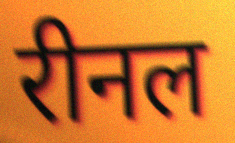
रीनल